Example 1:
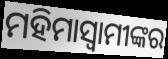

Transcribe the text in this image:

ମହିମାସ୍ୱାମୀଙ୍କର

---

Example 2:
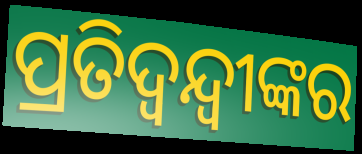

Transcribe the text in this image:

ପ୍ରତିଦ୍ୱନ୍ଦ୍ୱୀଙ୍କର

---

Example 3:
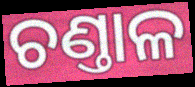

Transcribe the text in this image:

ଚଣ୍ତାଳ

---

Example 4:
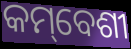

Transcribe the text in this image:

କମ୍‌ବେଶୀ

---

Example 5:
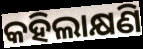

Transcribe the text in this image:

କହିଲାକ୍ଷଣି